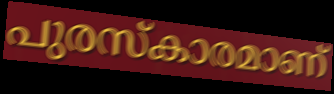
പുരസ്കാരമാണ്